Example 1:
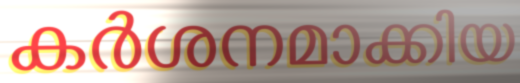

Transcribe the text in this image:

കർശനമാക്കിയ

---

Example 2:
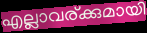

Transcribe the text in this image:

എല്ലാവര്ക്കുമായി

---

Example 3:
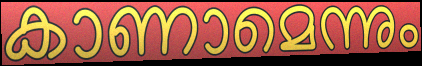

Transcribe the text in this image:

കാണാമെന്നും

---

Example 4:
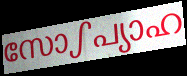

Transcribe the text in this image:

സോഽപ്യാഹ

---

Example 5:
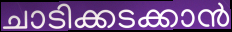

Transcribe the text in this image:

ചാടിക്കടക്കാൻ